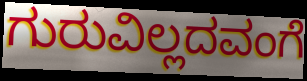
ಗುರುವಿಲ್ಲದವಂಗೆ